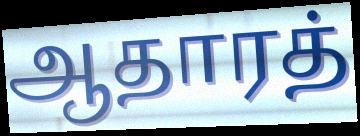
ஆதாரத்